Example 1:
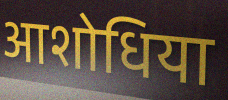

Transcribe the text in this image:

आशोधिया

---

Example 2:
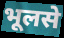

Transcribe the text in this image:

भूलसे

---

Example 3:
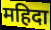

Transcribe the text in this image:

महिदा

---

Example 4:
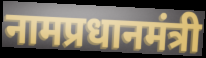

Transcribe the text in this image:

नामप्रधानमंत्री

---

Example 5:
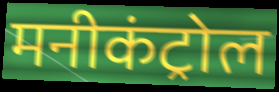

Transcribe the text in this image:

मनीकंट्रोल